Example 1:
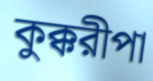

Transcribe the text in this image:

কুক্করীপা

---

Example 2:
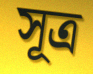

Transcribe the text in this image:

সূত্র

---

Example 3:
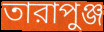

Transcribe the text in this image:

তারাপুঞ্জ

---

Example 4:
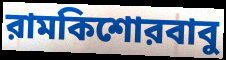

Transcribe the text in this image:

রামকিশোরবাবু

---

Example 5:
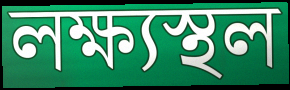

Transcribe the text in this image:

লক্ষ্যস্থল